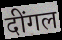
दींगल